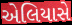
એલિયાસે